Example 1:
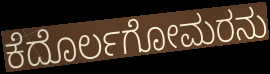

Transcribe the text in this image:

ಕೆದೊರ್ಲಗೋಮರನು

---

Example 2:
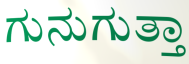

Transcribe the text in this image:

ಗುನುಗುತ್ತಾ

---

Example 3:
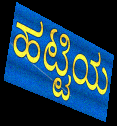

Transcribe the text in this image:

ಹಟ್ಟಿಯ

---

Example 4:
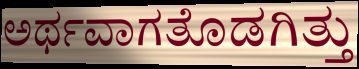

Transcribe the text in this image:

ಅರ್ಥವಾಗತೊಡಗಿತ್ತು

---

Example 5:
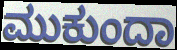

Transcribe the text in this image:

ಮುಕುಂದಾ